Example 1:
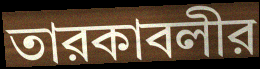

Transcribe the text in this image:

তারকাবলীর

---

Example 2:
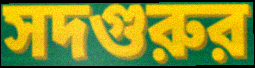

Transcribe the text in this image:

সদগুরুর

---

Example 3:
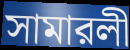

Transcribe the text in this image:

সামারলী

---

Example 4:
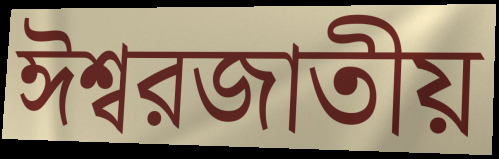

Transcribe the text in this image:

ঈশ্বরজাতীয়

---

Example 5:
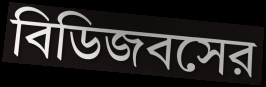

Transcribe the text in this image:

বিডিজবসের